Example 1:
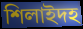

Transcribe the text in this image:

শিলাইদহ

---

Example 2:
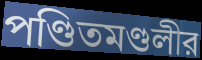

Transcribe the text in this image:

পণ্ডিতমণ্ডলীর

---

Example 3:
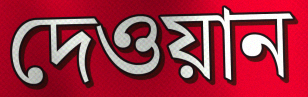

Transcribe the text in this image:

দেওয়ান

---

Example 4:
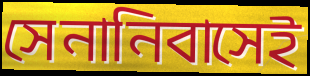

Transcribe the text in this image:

সেনানিবাসেই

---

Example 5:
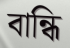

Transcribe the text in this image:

বান্ধি